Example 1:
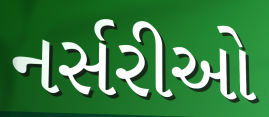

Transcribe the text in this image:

નર્સરીઓ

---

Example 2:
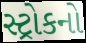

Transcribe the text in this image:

સ્ટ્રોકનો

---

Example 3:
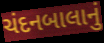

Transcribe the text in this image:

ચંદનબાલાનું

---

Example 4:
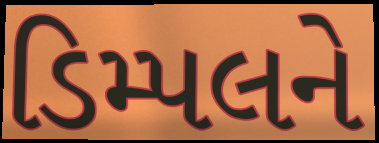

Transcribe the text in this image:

ડિમ્પલને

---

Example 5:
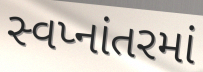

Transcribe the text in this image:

સ્વપ્નાંતરમાં